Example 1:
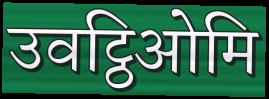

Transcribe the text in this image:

उवट्ठिओमि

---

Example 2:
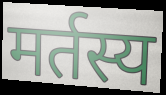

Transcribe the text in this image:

मर्तस्य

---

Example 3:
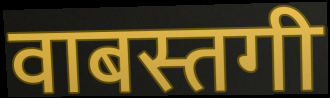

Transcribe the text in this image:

वाबस्तगी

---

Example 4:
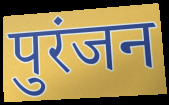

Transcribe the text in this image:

पुरंजन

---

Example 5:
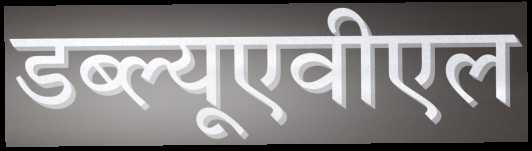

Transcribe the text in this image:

डब्ल्यूएवीएल